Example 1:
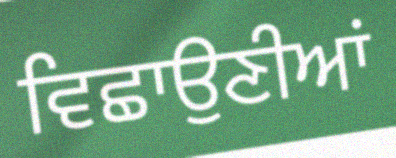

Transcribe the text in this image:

ਵਿਛਾਉਣੀਆਂ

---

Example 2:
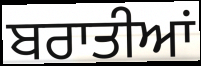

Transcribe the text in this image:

ਬਰਾਤੀਆਂ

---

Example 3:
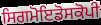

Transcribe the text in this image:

ਸਿਗਮੋਇਡੋਸਕੋਪੀ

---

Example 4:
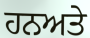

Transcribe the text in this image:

ਹਨਅਤੇ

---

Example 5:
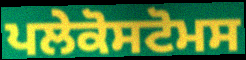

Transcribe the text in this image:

ਪਲੇਕੋਸਟੋਮਸ